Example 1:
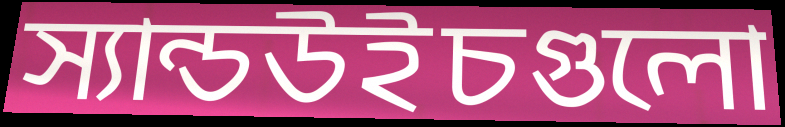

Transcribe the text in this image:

স্যান্ডউইচগুলো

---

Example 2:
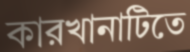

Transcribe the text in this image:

কারখানাটিতে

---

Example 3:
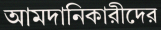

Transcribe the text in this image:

আমদানিকারীদের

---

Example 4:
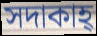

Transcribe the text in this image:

সদাকাহ্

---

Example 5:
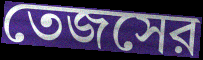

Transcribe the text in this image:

তেজসের